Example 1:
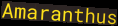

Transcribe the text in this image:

Amaranthus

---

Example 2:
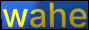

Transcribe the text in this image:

wahe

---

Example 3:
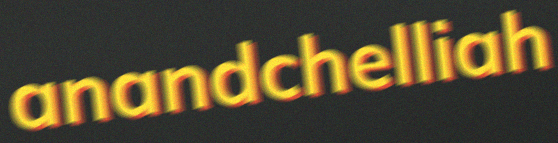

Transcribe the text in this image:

anandchelliah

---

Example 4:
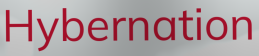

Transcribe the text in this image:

Hybernation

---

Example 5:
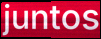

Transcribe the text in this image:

juntos